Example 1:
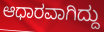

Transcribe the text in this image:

ಆಧಾರವಾಗಿದ್ದು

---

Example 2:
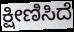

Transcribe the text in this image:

ಕ್ಷೀಣಿಸಿದೆ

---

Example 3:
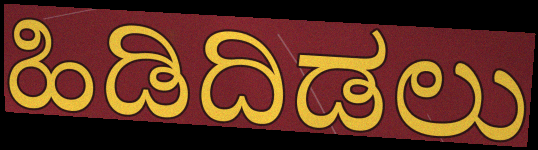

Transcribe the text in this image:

ಹಿಡಿದಿಡಲು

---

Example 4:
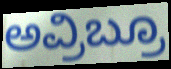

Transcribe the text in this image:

ಅವ್ರಿಬ್ರೂ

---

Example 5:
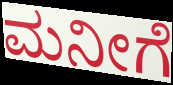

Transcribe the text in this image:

ಮನೀಗೆ